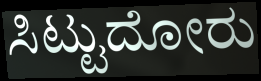
ಸಿಟ್ಟುದೋರು